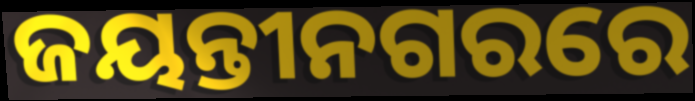
ଜୟନ୍ତୀନଗରରେ